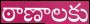
ఠాణాలకు